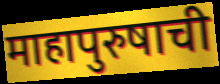
माहापुरुषाची